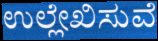
ಉಲ್ಲೇಖಿಸುವೆ